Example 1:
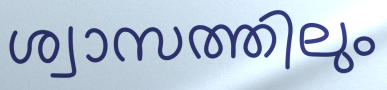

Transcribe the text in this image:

ശ്വാസത്തിലും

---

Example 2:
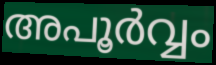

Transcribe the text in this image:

അപൂർവ്വം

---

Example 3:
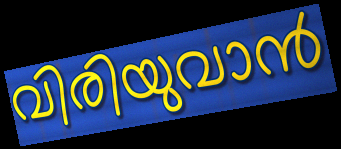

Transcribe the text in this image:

വിരിയുവാൻ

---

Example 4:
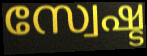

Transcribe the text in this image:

സ്വേഷ്ട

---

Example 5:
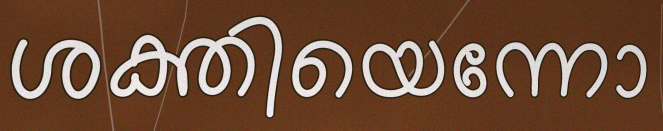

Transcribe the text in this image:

ശക്തിയെന്നോ